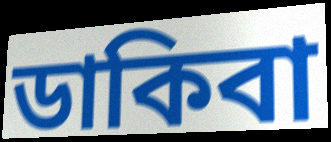
ডাকিবা